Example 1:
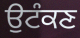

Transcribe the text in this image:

ਉਟੰਕਣ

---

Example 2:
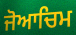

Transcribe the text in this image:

ਜੋਆਚਿਮ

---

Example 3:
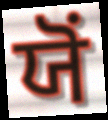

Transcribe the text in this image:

ਯੋਂ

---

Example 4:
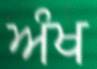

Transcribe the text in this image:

ਅੰਖ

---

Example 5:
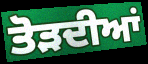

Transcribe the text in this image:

ਤੋੜਦੀਆਂ